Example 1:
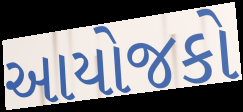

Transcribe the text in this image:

આયોજકો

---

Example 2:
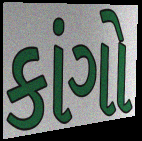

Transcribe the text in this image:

કાંગો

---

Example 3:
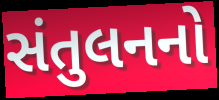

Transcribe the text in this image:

સંતુલનનો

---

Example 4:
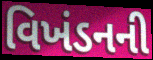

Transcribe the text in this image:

વિખંડનની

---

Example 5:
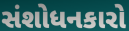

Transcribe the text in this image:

સંશોધનકારો